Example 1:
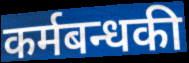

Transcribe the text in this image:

कर्मबन्धकी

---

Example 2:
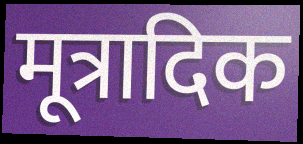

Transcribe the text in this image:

मूत्रादिक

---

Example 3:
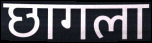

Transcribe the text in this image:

छागला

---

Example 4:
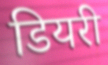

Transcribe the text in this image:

डियरी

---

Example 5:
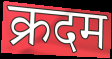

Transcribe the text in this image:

क्रदम